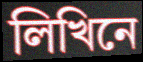
লিখিনে